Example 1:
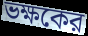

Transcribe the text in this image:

ভক্ষকের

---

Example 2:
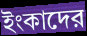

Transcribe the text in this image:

ইংকাদের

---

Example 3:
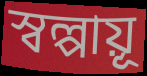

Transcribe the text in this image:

স্বল্পায়ূ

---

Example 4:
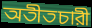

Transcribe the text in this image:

অতীতচারী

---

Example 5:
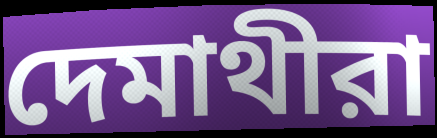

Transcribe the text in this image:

দেমাথীরা